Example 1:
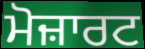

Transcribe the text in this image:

ਮੋਜ਼ਾਰਟ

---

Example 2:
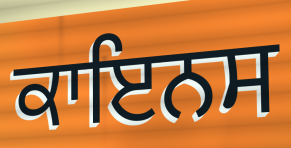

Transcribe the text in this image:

ਕਾਇਨਸ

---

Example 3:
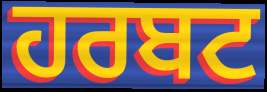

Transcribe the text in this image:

ਹਰਬਟ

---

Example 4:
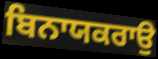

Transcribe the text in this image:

ਬਿਨਾਯਕਰਾਉ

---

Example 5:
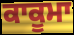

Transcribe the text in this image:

ਕਾਕੂਮਾ